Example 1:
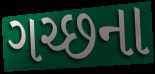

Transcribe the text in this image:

ગચ્છના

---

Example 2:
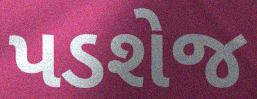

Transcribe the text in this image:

પડશેજ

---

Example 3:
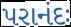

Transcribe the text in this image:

પરાનંદઃ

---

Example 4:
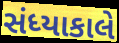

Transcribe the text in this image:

સંધ્યાકાલે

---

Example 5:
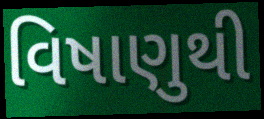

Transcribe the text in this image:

વિષાણુથી